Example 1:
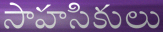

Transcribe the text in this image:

సాహసికులు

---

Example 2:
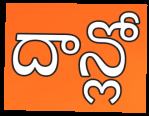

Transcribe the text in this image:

దాన్లో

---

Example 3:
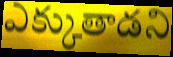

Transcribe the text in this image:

ఎక్కుతాడని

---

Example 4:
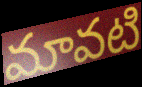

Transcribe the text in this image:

మావటి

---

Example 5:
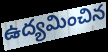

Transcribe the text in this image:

ఉద్యమించిన